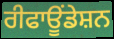
ਰੀਫਾਊਂਡੇਸ਼ਨ